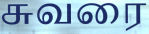
சுவரை